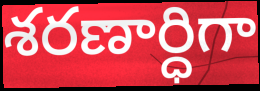
శరణార్ధిగా